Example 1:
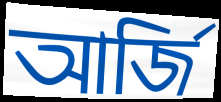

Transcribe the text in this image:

আর্জি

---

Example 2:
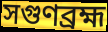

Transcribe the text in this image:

সগুণব্রহ্ম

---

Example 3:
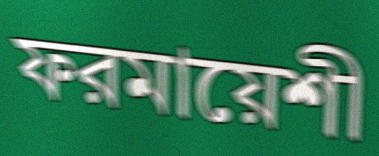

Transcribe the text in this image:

ফরমায়েশী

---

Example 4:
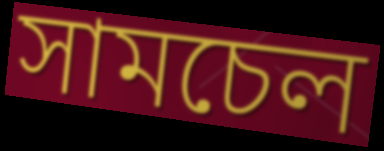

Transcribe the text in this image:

সামচেল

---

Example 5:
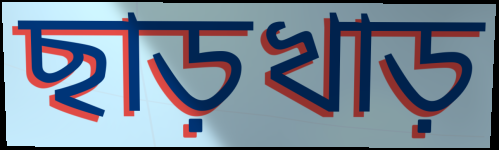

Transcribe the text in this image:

ছাড়খাড়